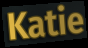
Katie